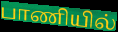
பாணியில்